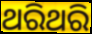
ଥରିଥରି